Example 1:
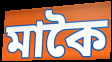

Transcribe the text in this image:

মাকৈ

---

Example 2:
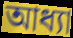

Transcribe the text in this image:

আধ্যা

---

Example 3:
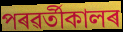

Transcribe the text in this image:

পৰৱৰ্তীকালৰ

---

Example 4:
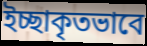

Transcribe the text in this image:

ইচ্ছাকৃতভাবে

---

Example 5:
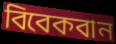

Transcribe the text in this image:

বিবেকবান